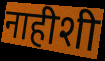
नाहीशी